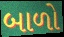
બાળો